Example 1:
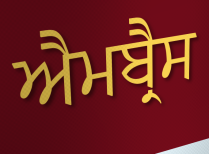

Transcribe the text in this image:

ਐਮਬ੍ਰੈਸ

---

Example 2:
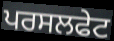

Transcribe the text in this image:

ਪਰਸਲਫੇਟ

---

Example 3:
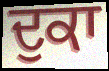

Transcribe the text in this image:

ਦੁਕਾ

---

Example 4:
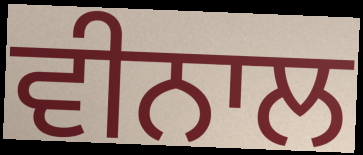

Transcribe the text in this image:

ਵੀਨਾਲ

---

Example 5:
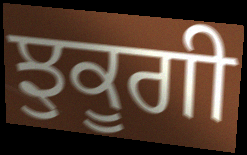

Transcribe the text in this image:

ਝੁਕੂਗੀ